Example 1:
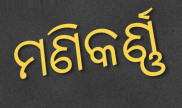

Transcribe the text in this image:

ମଣିକର୍ଣ୍ଣ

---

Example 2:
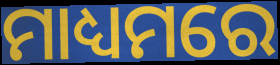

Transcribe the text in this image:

ମାଧ୍ୟମରେ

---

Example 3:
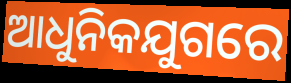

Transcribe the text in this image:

ଆଧୁନିକଯୁଗରେ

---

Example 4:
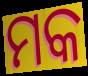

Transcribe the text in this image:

ମକ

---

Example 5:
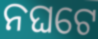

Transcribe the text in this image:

ନଘଟେ